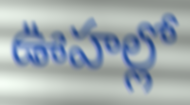
ఊహల్లో